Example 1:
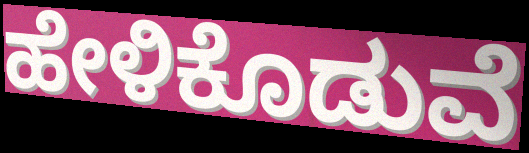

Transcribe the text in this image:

ಹೇಳಿಕೊಡುವೆ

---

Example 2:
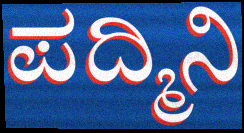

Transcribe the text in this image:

ಪದ್ಮಿನಿ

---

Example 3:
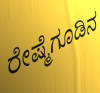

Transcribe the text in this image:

ರೇಷ್ಮೆಗೂಡಿನ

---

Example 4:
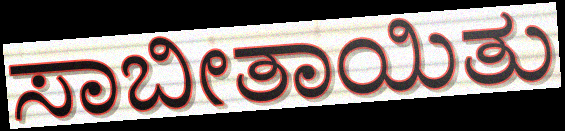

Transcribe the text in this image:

ಸಾಬೀತಾಯಿತು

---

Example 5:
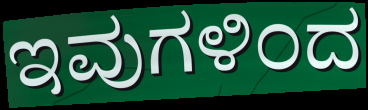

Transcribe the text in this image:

ಇವುಗಳಿಂದ